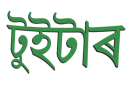
টুইটাৰ